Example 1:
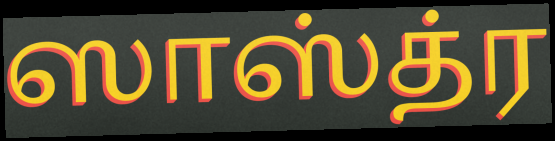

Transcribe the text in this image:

ஸாஸ்த்ர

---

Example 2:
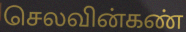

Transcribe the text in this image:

செலவின்கண்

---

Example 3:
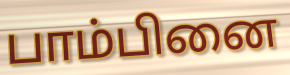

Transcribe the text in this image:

பாம்பினை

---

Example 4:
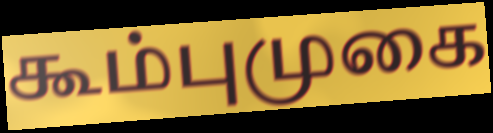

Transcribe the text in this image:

கூம்புமுகை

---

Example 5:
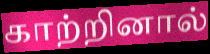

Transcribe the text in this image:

காற்றினால்